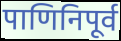
पाणिनिपूर्व